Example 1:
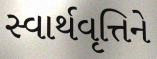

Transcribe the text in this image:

સ્વાર્થવૃત્તિને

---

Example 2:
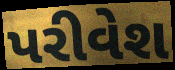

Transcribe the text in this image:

પરીવેશ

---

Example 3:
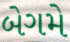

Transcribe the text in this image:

બેગમે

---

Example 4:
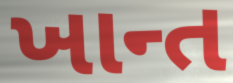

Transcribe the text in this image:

ખાન્ત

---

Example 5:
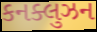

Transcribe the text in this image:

કનક્લુઝન